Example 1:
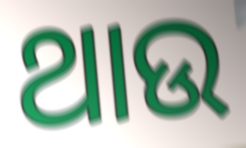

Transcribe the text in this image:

ଥାଉ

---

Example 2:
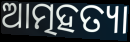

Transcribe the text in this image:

ଆତ୍ମହତ୍ୟା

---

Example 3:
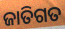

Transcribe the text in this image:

ଜାତିଗତ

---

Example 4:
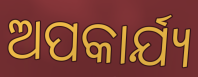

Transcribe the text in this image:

ଅପକାର୍ଯ୍ୟ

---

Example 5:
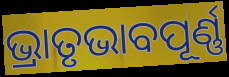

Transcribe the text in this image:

ଭ୍ରାତୃଭାବପୂର୍ଣ୍ଣ